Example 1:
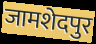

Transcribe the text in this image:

जामशेदपुर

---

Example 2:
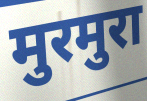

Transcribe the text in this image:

मुरमुरा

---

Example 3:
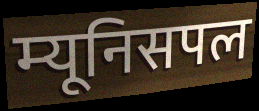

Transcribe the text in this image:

म्यूनिसपल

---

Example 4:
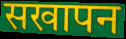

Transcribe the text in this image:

सखापन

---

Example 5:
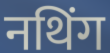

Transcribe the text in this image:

नथिंग